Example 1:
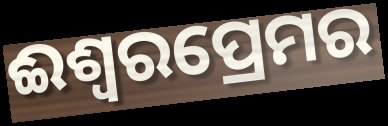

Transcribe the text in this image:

ଈଶ୍ୱରପ୍ରେମର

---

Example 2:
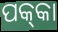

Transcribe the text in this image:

ପକ୍‍କା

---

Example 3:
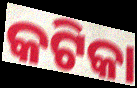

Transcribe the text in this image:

କଟିକା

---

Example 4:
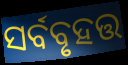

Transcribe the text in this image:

ସର୍ବବୃହତ୍ତ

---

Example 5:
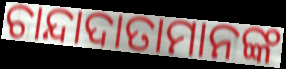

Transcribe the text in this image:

ଚାନ୍ଦାଦାତାମାନଙ୍କ